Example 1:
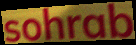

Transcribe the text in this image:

sohrab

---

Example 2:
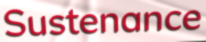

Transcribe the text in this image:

Sustenance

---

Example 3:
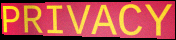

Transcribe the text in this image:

PRIVACY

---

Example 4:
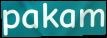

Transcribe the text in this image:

pakam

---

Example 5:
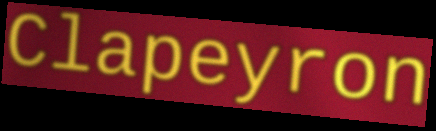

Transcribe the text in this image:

Clapeyron